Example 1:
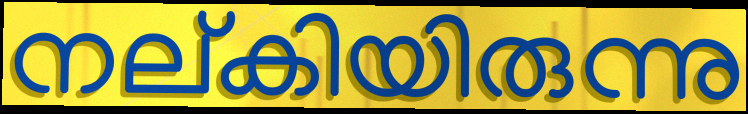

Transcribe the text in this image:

നല്കിയിരുന്നു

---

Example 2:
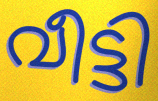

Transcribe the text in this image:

വീട്ടി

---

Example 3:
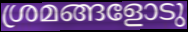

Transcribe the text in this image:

ശ്രമങ്ങളോടു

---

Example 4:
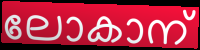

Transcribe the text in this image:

ലോകാന്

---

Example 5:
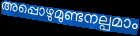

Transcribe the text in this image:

അപ്പൊഴുമുണ്ടനല്പമാം